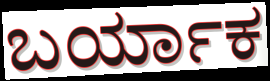
ಬರ್ಯಾಕ